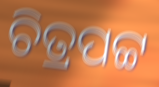
ଚିତ୍ରପଟ୍ଟ